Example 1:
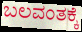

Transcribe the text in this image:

ಬಲವಂತಕ್ಕೆ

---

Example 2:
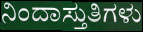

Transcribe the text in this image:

ನಿಂದಾಸ್ತುತಿಗಳು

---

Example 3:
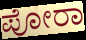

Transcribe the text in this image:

ಪೋರಾ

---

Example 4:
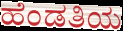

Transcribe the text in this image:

ಹೆಂಡತಿಯ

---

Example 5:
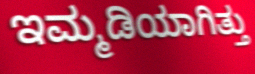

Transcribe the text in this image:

ಇಮ್ಮಡಿಯಾಗಿತ್ತು